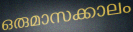
ഒരുമാസക്കാലം